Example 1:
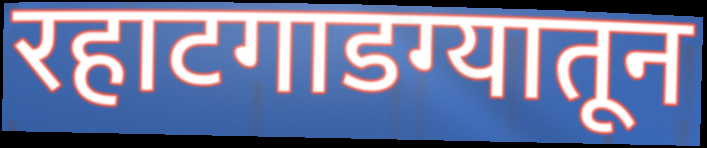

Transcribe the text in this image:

रहाटगाडग्यातून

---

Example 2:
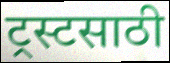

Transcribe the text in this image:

ट्रस्टसाठी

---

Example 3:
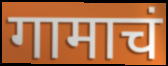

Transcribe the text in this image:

गामाचं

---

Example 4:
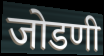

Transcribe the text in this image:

जोडणी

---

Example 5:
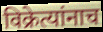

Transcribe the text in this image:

विक्रेत्यांनाच